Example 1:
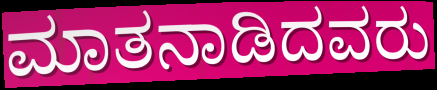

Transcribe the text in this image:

ಮಾತನಾಡಿದವರು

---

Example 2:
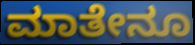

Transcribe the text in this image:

ಮಾತೇನೂ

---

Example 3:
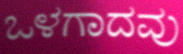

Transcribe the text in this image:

ಒಳಗಾದವು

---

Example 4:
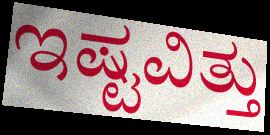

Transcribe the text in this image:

ಇಷ್ಟವಿತ್ತು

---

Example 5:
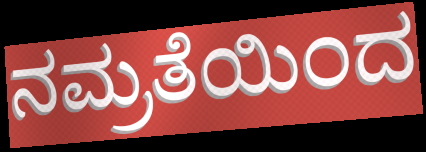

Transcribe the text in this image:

ನಮ್ರತೆಯಿಂದ